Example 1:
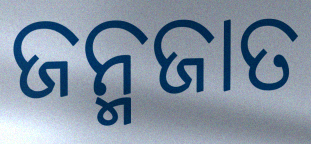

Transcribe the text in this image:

ଜନ୍ମଜାତ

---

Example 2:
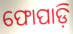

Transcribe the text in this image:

ଫୋପାଡ଼ି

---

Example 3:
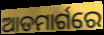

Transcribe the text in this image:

ଆଡମାର୍ଗରେ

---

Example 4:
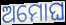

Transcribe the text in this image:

ଅମୋଘ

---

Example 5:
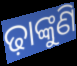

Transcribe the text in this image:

ଢ଼ାଙ୍କୁଣି